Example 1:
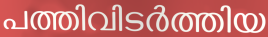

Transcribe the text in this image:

പത്തിവിടർത്തിയ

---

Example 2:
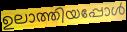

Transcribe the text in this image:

ഉലാത്തിയപ്പോൾ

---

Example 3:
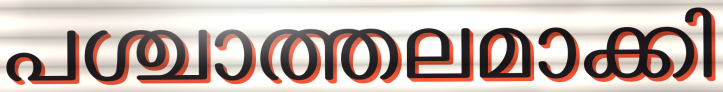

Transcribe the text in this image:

പശ്ചാത്തലമാക്കി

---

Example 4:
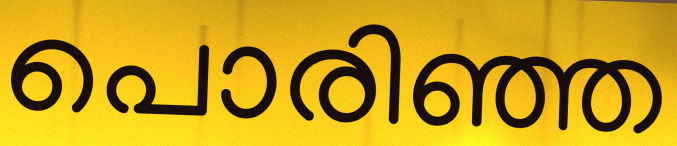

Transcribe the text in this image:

പൊരിഞ്ഞ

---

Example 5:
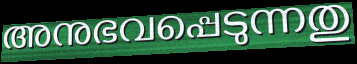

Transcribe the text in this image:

അനുഭവപ്പെടുന്നതു